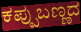
ಕಪ್ಪುಬಣ್ಣದ